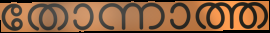
തോന്നാത്ത